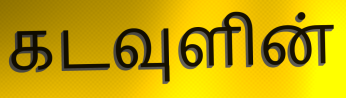
கடவுளின்